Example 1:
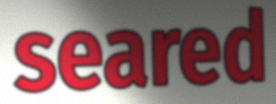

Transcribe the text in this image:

seared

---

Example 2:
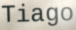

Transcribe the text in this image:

Tiago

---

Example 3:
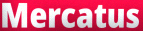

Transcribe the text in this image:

Mercatus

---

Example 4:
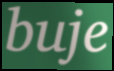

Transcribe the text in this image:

buje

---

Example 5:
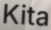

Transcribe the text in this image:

Kita